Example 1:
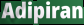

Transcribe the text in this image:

Adipiran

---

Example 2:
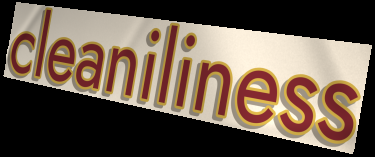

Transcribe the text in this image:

cleaniliness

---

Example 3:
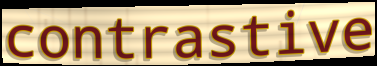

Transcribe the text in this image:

contrastive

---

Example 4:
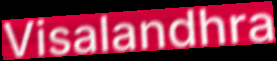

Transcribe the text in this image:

Visalandhra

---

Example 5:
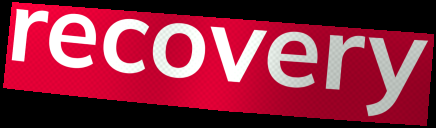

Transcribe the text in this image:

recovery